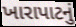
ખારાપાટનું